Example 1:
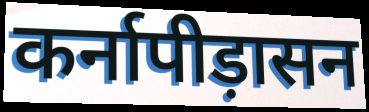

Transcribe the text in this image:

कर्नापीड़ासन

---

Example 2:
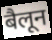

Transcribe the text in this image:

बैलून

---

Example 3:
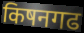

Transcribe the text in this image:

किषनगढ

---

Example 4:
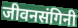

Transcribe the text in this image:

जीवनसंगिनी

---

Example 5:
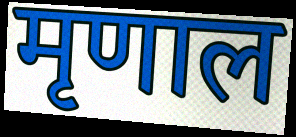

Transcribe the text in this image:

मृणाल